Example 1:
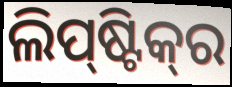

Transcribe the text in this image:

ଲିପ୍‌ଷ୍ଟିକ୍‌ର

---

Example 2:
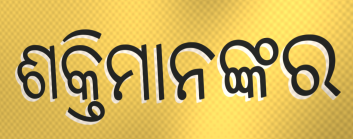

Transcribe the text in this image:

ଶକ୍ତିମାନଙ୍କର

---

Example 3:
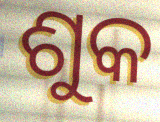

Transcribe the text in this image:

ଶୁକ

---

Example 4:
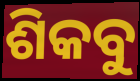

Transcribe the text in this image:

ଶିକବୁ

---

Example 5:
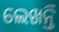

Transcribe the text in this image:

ଲେଖନ୍ତି